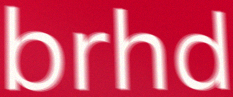
brhd